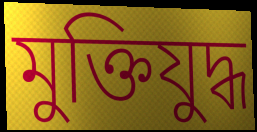
মুক্তিযুদ্ধ